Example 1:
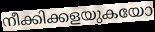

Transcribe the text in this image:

നീക്കിക്കളയുകയോ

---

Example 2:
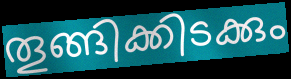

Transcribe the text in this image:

തൂങ്ങിക്കിടക്കും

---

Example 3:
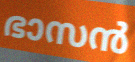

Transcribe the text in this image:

ഭാസൻ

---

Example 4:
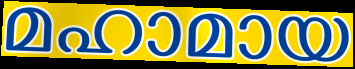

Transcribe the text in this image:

മഹാമായ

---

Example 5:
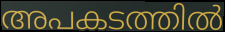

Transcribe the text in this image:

അപകടത്തിൽ